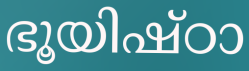
ഭൂയിഷ്ഠാ